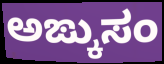
ಅಙ್ಕುಸಂ